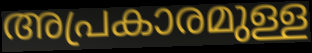
അപ്രകാരമുള്ള